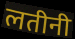
लतीनी